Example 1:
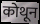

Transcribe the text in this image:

कोथून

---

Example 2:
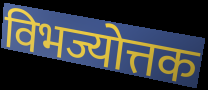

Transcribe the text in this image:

विभज्योत्तक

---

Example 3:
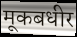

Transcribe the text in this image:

मूकबधीर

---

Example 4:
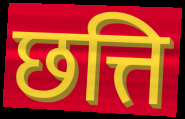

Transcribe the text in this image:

छत्ति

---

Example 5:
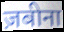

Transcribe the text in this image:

ज़बीना